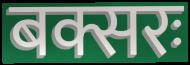
बक्सरः